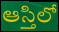
ఆస్తిలో